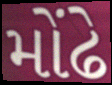
મોંઢે